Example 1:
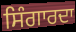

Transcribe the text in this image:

ਸਿੰਗਾਰਦਾ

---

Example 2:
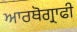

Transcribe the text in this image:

ਆਰਥੋਗ੍ਰਾਫੀ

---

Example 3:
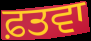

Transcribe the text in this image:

ਫ਼ਤਵਾ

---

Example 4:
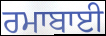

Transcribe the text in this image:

ਰਮਾਬਾਈ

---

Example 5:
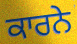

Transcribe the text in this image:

ਕਾਰਨੇ